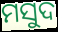
ମସୁଦ